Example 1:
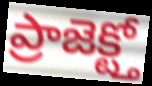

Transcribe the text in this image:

ప్రాజెక్ట్తో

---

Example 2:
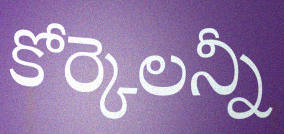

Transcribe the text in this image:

కోర్కెలన్నీ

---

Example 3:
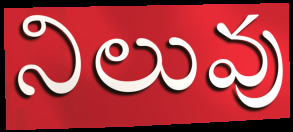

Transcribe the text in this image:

నిలువు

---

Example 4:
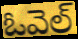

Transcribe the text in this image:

ఓవెల్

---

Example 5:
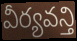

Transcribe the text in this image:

వీర్యవన్తి